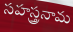
సహస్త్రనామ